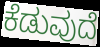
ಕೆಡುವುದೆ